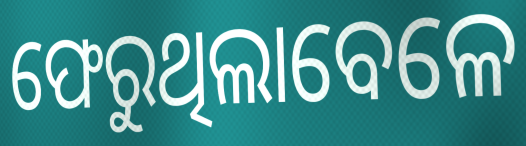
ଫେରୁଥିଲାବେଳେ